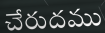
చేరుదము